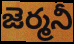
జెర్మనీ